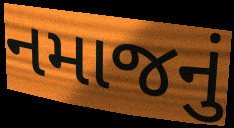
નમાજનું